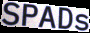
SPADs